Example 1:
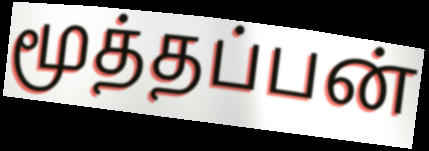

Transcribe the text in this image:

மூத்தப்பன்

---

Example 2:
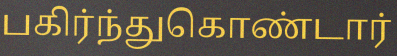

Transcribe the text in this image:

பகிர்ந்துகொண்டார்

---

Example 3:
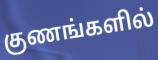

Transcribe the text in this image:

குணங்களில்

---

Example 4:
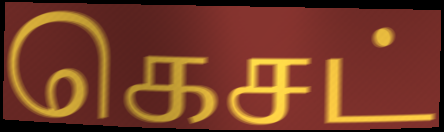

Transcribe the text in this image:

கெசட்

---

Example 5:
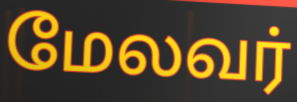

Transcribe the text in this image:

மேலவர்